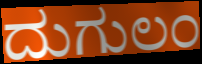
ದುಗುಲಂ